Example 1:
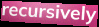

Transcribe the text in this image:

recursively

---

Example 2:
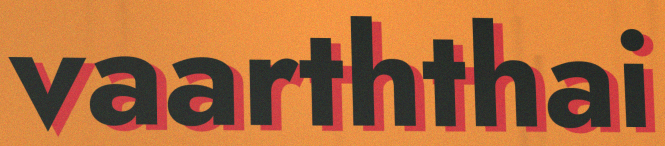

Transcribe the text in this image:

vaarththai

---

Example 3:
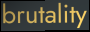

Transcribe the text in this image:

brutality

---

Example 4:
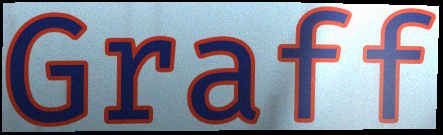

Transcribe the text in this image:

Graff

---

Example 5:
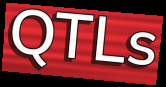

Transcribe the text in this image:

QTLs